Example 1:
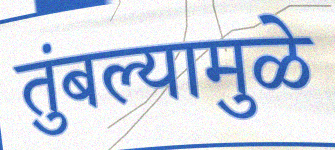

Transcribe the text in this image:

तुंबल्यामुळे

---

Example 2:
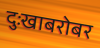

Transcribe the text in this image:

दुःखाबरोबर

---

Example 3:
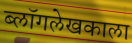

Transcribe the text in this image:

ब्लॉगलेखकाला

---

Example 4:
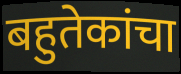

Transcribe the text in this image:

बहुतेकांचा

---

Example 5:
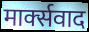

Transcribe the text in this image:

मार्क्‍सवाद